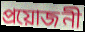
প্ৰয়োজনী